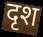
दृश